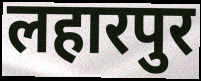
लहारपुर